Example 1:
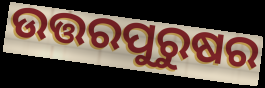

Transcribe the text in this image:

ଉତ୍ତରପୁରୁଷର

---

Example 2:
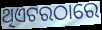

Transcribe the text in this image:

ଥିଏଟରଠାରେ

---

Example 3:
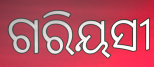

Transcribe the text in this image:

ଗରିୟସୀ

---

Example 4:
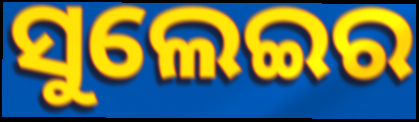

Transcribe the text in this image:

ସୁଲେଇର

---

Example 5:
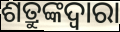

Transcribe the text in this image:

ଶତ୍ରୁଙ୍କଦ୍ୱାରା